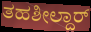
ತಹಶೀಲ್ದಾರ್